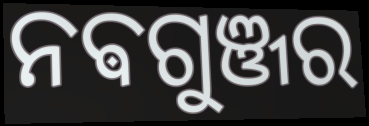
ନଵଗୁଞ୍ଜର